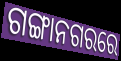
ଗଙ୍ଗାନଗରରେ